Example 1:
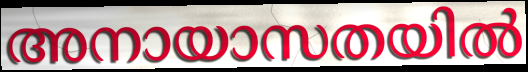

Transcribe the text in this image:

അനായാസതയിൽ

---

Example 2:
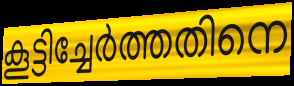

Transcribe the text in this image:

കൂട്ടിച്ചേർത്തതിനെ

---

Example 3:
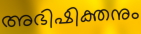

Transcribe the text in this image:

അഭിഷിക്തനും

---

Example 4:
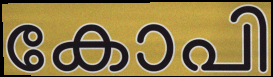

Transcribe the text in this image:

കോപി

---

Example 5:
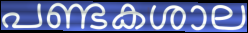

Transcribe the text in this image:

പണ്ടകശാല